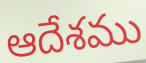
ఆదేశము